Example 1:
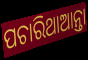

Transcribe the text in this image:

ପଚାରିଥାଆନ୍ତା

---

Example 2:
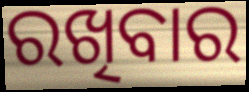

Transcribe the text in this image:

ରଖିବାର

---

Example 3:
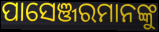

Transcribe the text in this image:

ପାସେଞ୍ଜରମାନଙ୍କୁ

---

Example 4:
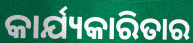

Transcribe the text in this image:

କାର୍ଯ୍ୟକାରିତାର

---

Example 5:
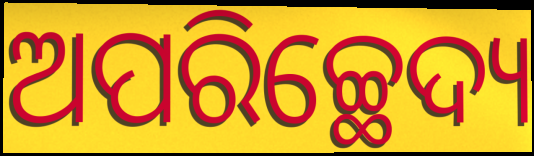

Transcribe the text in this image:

ଅପରିଚ୍ଛେଦ୍ୟ